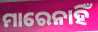
ମାରେନାହିଁ